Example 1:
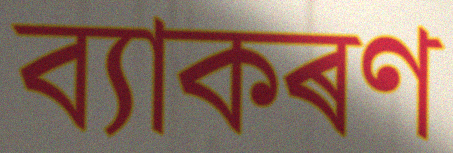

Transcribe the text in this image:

ব্যাকৰণ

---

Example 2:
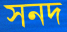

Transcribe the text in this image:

সনদ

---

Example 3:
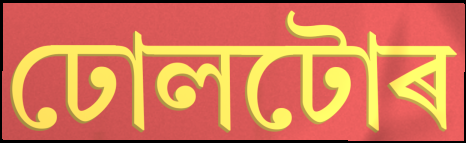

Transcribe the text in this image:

ঢোলটোৰ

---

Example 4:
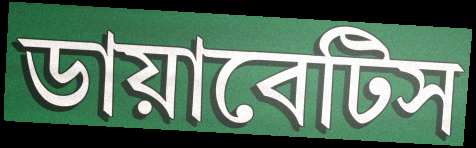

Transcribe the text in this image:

ডায়াবেটিস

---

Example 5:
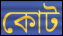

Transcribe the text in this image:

কোট